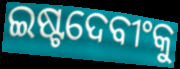
ଇଷ୍ଟଦେବୀଂକୁ